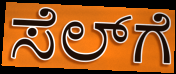
ಸೆಲ್‍ಗೆ